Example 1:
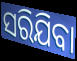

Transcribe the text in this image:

ସରିଯିବା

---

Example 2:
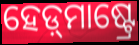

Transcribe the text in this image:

ହେଡ଼୍‍ମାଷ୍ଟ୍ରେ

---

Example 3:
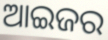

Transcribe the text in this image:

ଆଇଜର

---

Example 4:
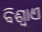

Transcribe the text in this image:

ବିଶ୍ୱାଏ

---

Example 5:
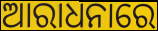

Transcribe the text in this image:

ଆରାଧନାରେ